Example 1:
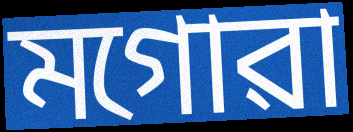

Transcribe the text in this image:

মগোৱা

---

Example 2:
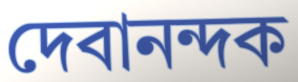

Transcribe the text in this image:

দেবানন্দক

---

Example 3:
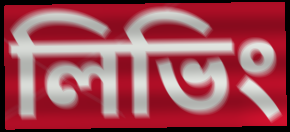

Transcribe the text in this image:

লিভিং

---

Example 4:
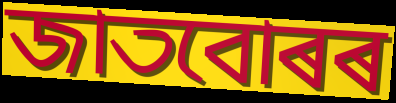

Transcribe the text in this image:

জাতবোৰৰ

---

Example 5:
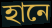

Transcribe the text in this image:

হানে